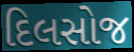
દિલસોજ